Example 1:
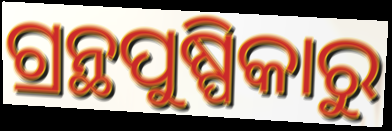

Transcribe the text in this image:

ଗ୍ରନ୍ଥପୁଷ୍ପିକାରୁ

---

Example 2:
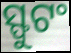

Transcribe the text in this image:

ସ୍ଫୁଟଂ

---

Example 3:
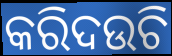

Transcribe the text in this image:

କରିଦଉଚି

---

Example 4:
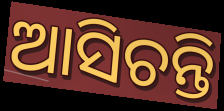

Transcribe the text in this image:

ଆସିଚନ୍ତି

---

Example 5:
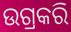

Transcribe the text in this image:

ଉଗ୍ରକରି